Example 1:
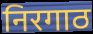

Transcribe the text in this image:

निरगाठ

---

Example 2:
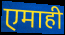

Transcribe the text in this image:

एमाही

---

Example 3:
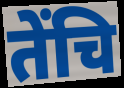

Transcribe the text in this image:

तेंचि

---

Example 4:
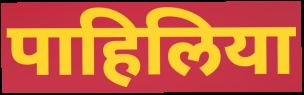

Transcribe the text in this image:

पाहिलिया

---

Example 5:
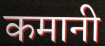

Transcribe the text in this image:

कमानी